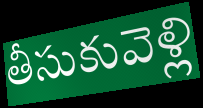
తీసుకువెళ్లి